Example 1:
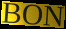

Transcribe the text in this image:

BON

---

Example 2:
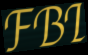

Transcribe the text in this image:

FBI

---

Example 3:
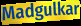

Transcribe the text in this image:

Madgulkar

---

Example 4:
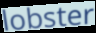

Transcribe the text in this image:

lobster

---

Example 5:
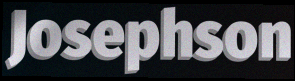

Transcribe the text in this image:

Josephson